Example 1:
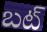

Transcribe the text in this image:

బట్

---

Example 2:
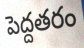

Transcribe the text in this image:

పెద్దతరం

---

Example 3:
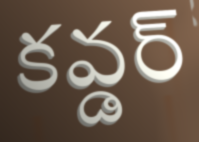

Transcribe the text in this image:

కవ్డర్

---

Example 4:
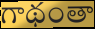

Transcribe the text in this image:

గాథంతా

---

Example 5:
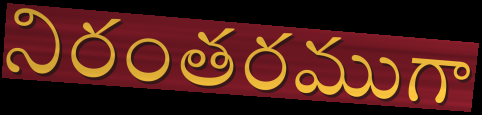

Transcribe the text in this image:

నిరంతరముగా